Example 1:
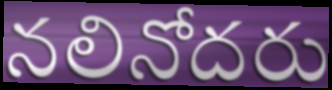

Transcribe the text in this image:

నలినోదరు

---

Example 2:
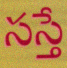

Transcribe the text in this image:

సస్తే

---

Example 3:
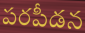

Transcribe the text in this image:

పరపీడన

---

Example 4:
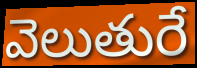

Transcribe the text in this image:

వెలుతురే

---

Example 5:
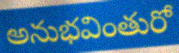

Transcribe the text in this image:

అనుభవింతురో